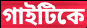
গাইটিকে